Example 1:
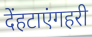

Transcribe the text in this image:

देंहटाएंगहरी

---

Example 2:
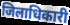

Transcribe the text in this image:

जिलाधिकारी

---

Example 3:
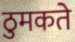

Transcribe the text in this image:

ठुमकते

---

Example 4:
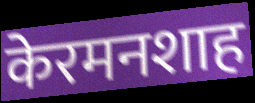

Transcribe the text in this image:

केरमनशाह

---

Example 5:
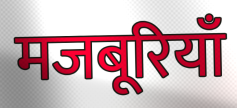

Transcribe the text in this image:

मजबूरियाँ